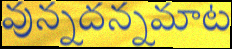
వున్నదన్నమాట